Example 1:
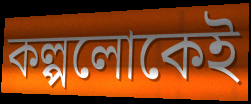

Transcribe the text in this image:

কল্পলোকেই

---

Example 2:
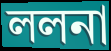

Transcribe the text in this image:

ললনা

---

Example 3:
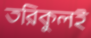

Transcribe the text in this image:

তরিকুলই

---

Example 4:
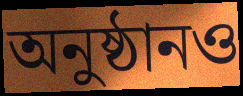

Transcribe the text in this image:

অনুষ্ঠানও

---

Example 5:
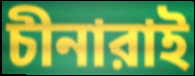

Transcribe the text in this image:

চীনারাই